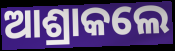
ଆଶ୍ରାକଲେ